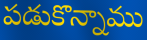
పడుకొన్నాము